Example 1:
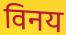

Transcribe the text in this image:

विनय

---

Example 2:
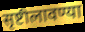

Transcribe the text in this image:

सृष्टीलावण्या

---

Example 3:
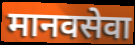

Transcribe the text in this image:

मानवसेवा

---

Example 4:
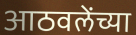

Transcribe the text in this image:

आठवलेंच्या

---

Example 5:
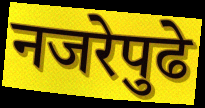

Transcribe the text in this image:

नजरेपुढे